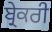
ਬ੍ਰੇਕਰੀ